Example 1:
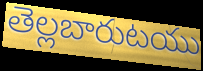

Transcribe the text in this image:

తెల్లబారుటయు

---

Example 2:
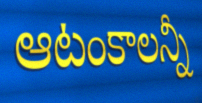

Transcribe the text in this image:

ఆటంకాలన్నీ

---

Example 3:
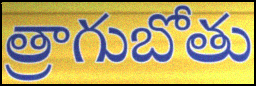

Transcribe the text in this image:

త్రాగుబోతు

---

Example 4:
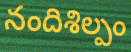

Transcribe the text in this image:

నందిశిల్పం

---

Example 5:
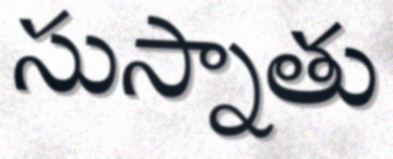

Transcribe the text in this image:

సుస్నాతు